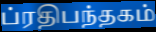
ப்ரதிபந்தகம்